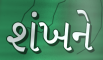
શંખને